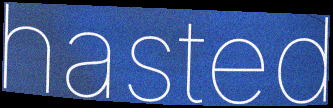
hasted